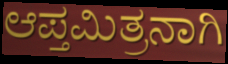
ಆಪ್ತಮಿತ್ರನಾಗಿ